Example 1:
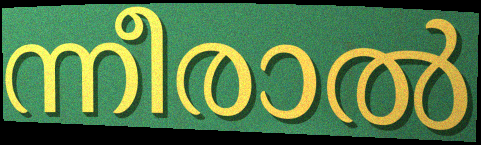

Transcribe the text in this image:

ന്നീരാൽ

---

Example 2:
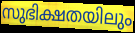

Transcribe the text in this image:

സുഭിക്ഷതയിലും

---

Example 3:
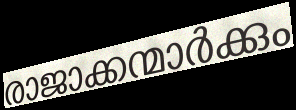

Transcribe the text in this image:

രാജാക്കന്മാർക്കും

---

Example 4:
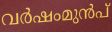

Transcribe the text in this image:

വർഷംമുൻപ്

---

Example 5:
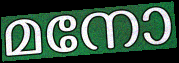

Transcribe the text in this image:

മനോ